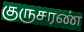
குருசரண்